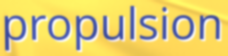
propulsion